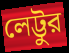
লেট্টুর